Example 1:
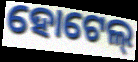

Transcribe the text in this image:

ହୋଟେଲ୍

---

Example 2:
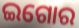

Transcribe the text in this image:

ଇଗୋର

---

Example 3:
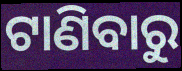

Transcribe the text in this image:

ଟାଣିବାରୁ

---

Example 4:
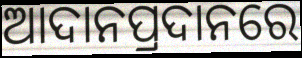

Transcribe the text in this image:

ଆଦାନପ୍ରଦାନରେ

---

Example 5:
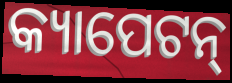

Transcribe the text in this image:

କ୍ୟାପେଟନ୍